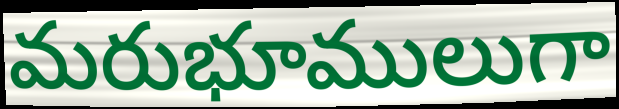
మరుభూములుగా